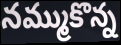
నమ్ముకొన్న